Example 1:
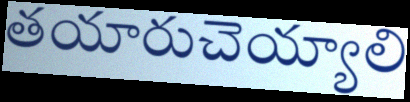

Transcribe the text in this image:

తయారుచెయ్యాలి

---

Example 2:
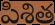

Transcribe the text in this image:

పిశిత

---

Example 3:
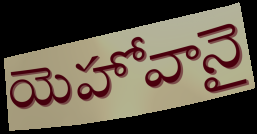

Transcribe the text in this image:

యెహోవానై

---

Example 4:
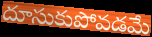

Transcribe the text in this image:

దూసుకుపోవడమే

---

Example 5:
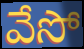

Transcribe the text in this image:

వేసో